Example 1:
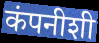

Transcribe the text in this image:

कंपनीशी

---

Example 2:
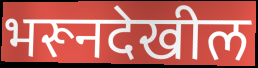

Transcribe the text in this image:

भरूनदेखील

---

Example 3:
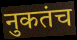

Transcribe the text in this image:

नुकतंच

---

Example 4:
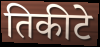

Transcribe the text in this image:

तिकीटे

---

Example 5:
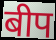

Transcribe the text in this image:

बीप